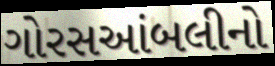
ગોરસઆંબલીનો